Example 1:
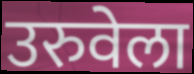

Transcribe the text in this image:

उरुवेला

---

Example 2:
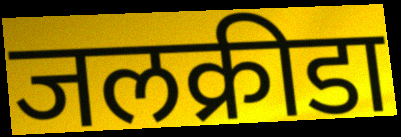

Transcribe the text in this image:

जलक्रीडा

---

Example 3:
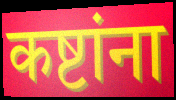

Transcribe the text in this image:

कष्टांना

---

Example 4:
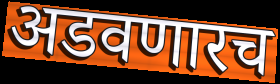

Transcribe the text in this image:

अडवणारच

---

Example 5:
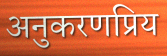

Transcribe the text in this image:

अनुकरणप्रिय